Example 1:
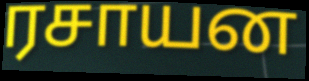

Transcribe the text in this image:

ரசாயன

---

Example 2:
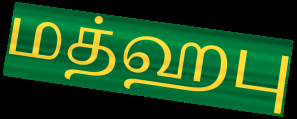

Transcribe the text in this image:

மத்ஹபு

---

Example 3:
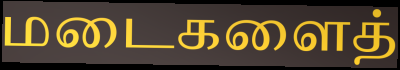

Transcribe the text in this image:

மடைகளைத்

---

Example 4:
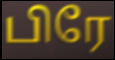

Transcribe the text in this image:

பிரே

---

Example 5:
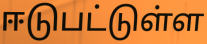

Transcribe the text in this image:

ஈடுபட்டுள்ள